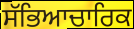
ਸੱਭਿਆਚਾਰਿਕ